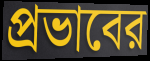
প্রভাবের